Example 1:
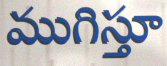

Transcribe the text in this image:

ముగిస్తూ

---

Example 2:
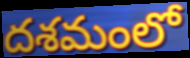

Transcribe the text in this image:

దశమంలో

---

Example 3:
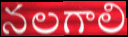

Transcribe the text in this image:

నలగాలి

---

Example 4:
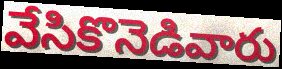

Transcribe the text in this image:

వేసికొనెడివారు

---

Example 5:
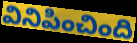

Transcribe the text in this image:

వినిపించింది